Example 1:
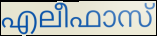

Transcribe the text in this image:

എലീഫാസ്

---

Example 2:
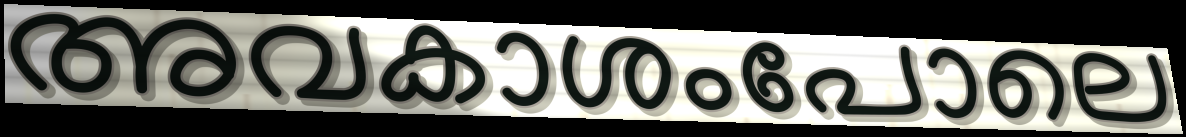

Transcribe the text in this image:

അവകാശംപോലെ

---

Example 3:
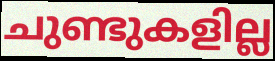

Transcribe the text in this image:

ചുണ്ടുകളില്ല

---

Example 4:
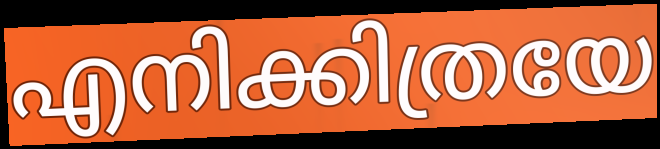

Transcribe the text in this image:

എനിക്കിത്രയേ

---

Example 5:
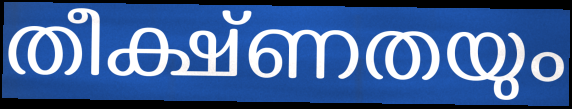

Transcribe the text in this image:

തീക്ഷ്‌ണതയും